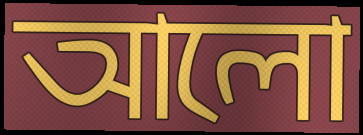
আলো